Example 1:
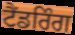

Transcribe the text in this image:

ਟੈਂਡਰਿੰਗ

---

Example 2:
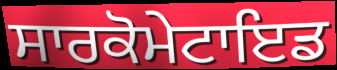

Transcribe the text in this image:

ਸਾਰਕੋਮੇਟਾਇਡ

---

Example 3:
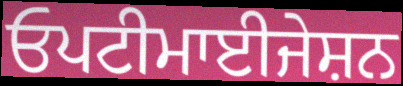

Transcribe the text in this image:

ਓਪਟੀਮਾਈਜੇਸ਼ਨ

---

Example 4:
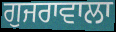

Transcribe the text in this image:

ਗੁਜਰਾਵਾਲਾ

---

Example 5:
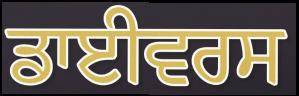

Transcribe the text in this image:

ਡਾਈਵਰਸ